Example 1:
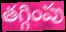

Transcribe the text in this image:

తగ్గింపు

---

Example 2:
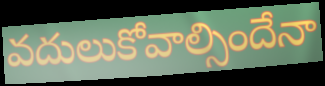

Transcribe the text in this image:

వదులుకోవాల్సిందేనా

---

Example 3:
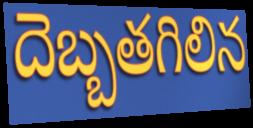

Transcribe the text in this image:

దెబ్బతగిలిన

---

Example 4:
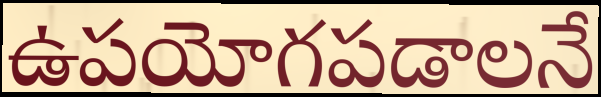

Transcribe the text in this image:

ఉపయోగపడాలనే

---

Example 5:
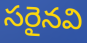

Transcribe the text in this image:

సరైనవి